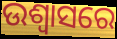
ଉଶ୍ଵାସରେ